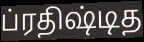
ப்ரதிஷ்டித